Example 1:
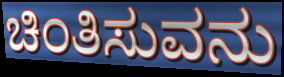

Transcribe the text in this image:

ಚಿಂತಿಸುವನು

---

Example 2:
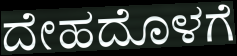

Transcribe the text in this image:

ದೇಹದೊಳಗೆ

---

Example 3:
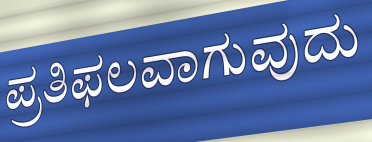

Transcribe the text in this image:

ಪ್ರತಿಫಲವಾಗುವುದು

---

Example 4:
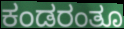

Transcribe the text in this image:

ಕಂಡರಂತೂ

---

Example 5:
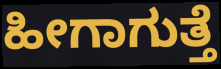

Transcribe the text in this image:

ಹೀಗಾಗುತ್ತೆ